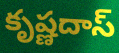
కృష్ణదాస్